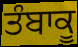
ਤੰਬਾਕੂ